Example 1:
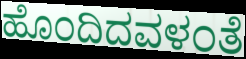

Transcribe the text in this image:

ಹೊಂದಿದವಳಂತೆ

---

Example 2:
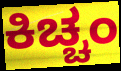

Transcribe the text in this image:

ಕಿಚ್ಚಂ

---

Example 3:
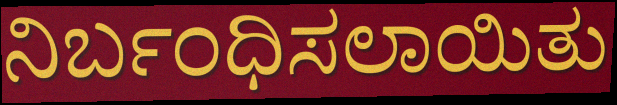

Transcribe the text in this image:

ನಿರ್ಬಂಧಿಸಲಾಯಿತು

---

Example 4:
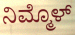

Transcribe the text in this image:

ನಿಮ್ಮೊಳ್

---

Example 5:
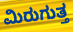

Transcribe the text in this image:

ಮಿರುಗುತ್ತ